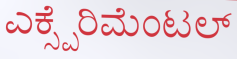
ಎಕ್ಸ್ಪೆರಿಮೆಂಟಲ್